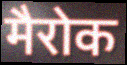
मैरोक